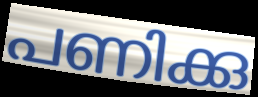
പണിക്കു